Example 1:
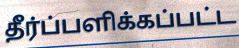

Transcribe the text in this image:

தீர்ப்பளிக்கப்பட்ட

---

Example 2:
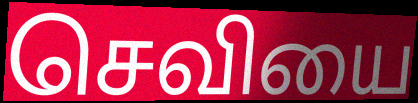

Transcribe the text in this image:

செவியை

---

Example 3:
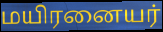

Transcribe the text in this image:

மயிரனையர்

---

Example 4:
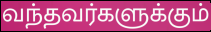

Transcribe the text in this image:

வந்தவர்களுக்கும்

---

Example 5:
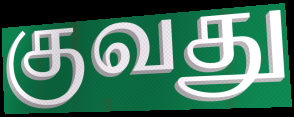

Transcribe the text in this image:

குவது